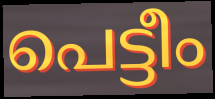
പെട്ടീം